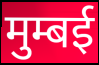
मुम्बई